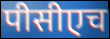
पीसीएच